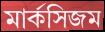
মার্কসিজম